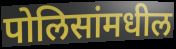
पोलिसांमधील